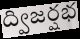
ద్విజర్షభ